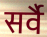
सर्वै